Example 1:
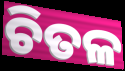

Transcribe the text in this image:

ଚିତଳ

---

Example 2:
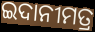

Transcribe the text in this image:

ଇଦାନୀମତ୍ର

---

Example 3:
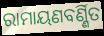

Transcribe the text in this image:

ରାମାୟଣବର୍ଣ୍ଣିତ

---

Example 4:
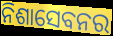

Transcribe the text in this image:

ନିଶାସେବନର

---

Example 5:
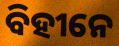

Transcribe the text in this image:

ବିହୀନେ